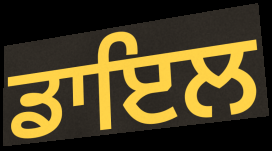
ਡਾਇਲ